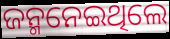
ଜନ୍ମନେଇଥିଲେ